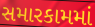
સમારકામમાં